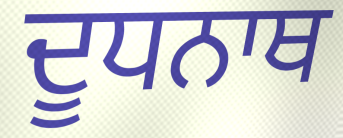
ਦੂਧਨਾਥ